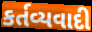
કર્તવ્યવાદી